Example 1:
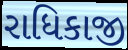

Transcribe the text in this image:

રાધિકાજી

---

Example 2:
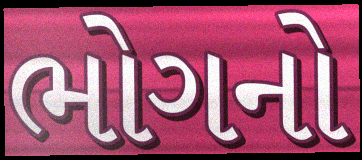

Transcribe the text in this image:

ભોગનો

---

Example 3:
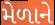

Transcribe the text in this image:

મેળાને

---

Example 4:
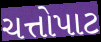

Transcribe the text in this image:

ચત્તોપાટ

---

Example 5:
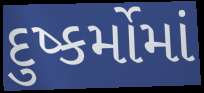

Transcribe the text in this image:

દુષ્કર્મોમાં